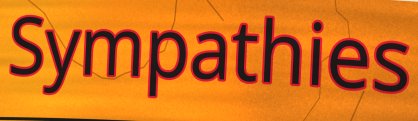
Sympathies